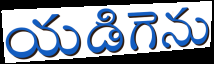
యడిగెను